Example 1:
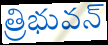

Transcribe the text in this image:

త్రిభువన్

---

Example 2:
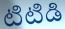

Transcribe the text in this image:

టిటిడి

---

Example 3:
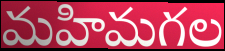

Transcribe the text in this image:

మహిమగల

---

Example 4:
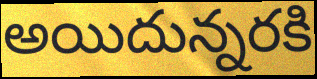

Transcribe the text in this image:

అయిదున్నరకి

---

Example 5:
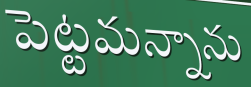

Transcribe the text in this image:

పెట్టమన్నాను